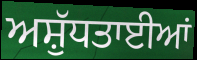
ਅਸ਼ੁੱਧਤਾਈਆਂ